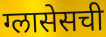
ग्लासेसची